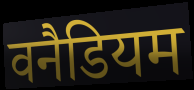
वनैडियम